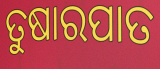
ତୁଷାରପାତ